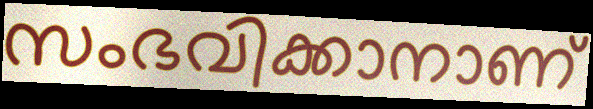
സംഭവിക്കാനാണ്